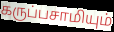
கருப்பசாமியும்